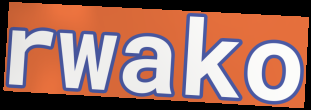
rwako